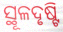
ସ୍ଥୂଳଦୃଷ୍ଟି